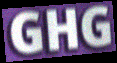
GHG